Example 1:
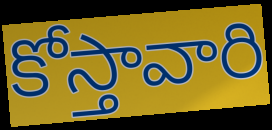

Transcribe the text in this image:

కోస్తావారి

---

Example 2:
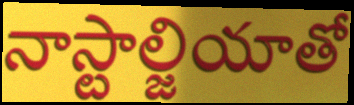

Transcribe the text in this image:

నాస్టాల్జియాతో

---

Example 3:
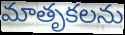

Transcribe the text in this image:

మాతృకలను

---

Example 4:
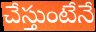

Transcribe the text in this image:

చేస్తుంటేనే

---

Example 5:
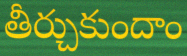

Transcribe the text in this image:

తీర్చుకుందాం